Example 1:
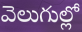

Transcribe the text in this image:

వెలుగుల్లో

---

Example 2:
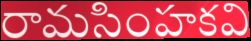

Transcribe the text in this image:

రామసింహకవి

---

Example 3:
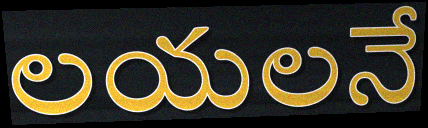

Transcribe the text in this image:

లయలనే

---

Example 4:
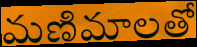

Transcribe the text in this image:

మణిమాలతో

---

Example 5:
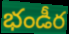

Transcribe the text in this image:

భండీర